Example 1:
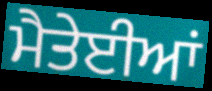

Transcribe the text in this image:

ਮੈਤੇਈਆਂ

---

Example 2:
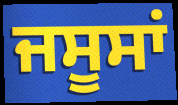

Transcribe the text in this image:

ਜਸੂਸਾਂ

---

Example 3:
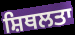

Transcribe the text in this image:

ਸ਼ਿਥਲਤਾ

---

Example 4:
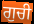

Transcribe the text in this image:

ਗੁਚੀ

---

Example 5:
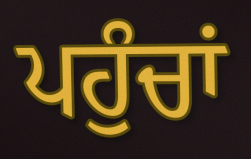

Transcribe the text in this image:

ਪਹੁੰਚਾਂ